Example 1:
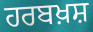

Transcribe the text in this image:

ਹਰਬਖ਼ਸ਼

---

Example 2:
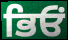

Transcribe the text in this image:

ਭਿਓਂ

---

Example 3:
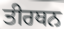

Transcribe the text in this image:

ਤੀਰਥਨ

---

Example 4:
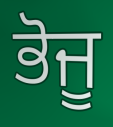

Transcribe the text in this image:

ਭੋਜੂ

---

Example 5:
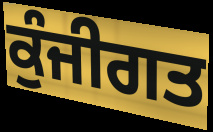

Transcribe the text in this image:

ਕੁੰਜੀਗਤ